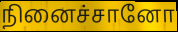
நினைச்சானோ